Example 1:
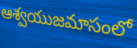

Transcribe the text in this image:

ఆశ్వయుజమాసంలో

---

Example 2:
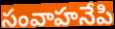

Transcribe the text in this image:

సంవాహనేపి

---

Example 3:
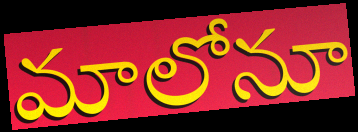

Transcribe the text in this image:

మాలోనూ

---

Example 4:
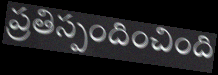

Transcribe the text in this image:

ప్రతిస్పందించింది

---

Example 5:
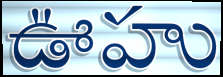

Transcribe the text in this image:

ఊహు